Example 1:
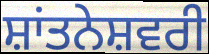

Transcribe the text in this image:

ਸ਼ਾਂਤਨੇਸ਼ਵਰੀ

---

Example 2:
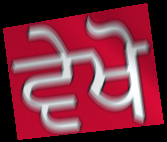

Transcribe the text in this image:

ਵੇਖੋ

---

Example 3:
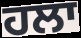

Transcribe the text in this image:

ਹਲਾ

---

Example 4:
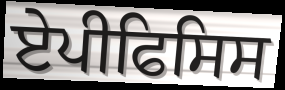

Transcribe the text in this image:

ਏਪੀਫਿਸਿਸ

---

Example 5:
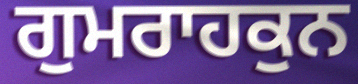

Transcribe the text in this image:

ਗੁਮਰਾਹਕੁਨ